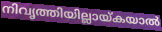
നിവൃത്തിയില്ലായ്കയാൽ